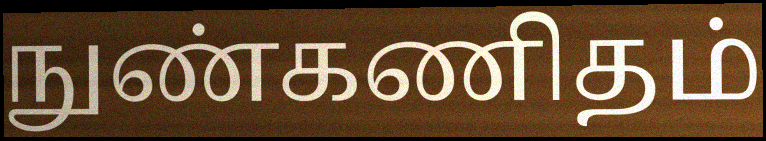
நுண்கணிதம்